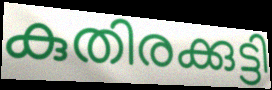
കുതിരക്കുട്ടി